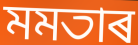
মমতাৰ